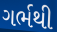
ગર્ભથી